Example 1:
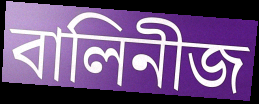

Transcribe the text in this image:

বালিনীজ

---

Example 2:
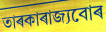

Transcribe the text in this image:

তাৰকাৰাজ্যবোৰ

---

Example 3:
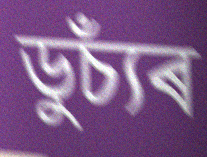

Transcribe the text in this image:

ডুচ্যঁৰ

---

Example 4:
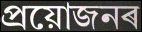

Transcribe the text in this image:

প্ৰয়োজনৰ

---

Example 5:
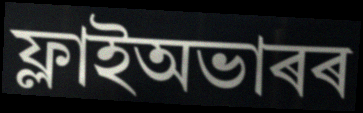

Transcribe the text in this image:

ফ্লাইঅভাৰৰ